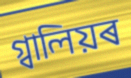
গ্বালিয়ৰ